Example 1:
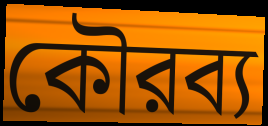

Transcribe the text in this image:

কৌরব্য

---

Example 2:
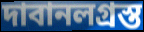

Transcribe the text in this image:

দাবানলগ্রস্ত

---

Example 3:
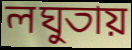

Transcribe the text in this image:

লঘুতায়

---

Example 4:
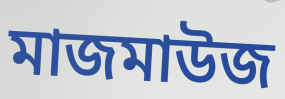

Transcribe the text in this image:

মাজমাউজ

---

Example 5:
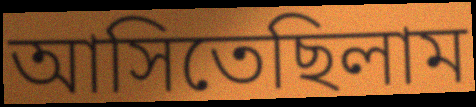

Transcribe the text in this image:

আসিতেছিলাম